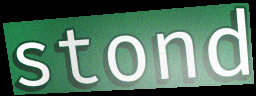
stond